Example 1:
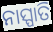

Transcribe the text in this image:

ନାସ୍ପାତି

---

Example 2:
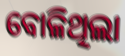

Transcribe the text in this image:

ବୋଳିଥିଲା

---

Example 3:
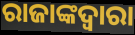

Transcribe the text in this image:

ରାଜାଙ୍କଦ୍ଵାରା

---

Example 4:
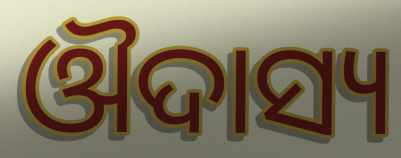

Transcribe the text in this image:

ଔଦାସ୍ୟ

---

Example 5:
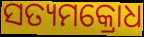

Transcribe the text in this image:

ସତ୍ୟମକ୍ରୋଧ